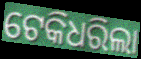
ଟେକିଧରିଲା